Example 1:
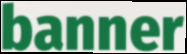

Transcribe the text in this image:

banner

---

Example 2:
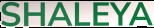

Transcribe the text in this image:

SHALEYA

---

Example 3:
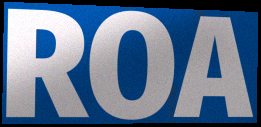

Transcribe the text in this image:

ROA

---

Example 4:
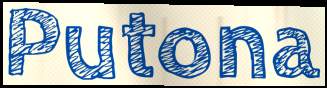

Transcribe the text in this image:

Putona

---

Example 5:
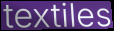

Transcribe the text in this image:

textiles